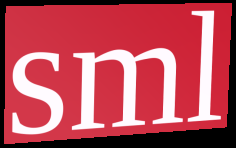
sml